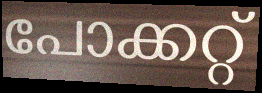
പോക്കറ്റ്